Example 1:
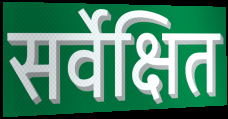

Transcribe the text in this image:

सर्वेक्षित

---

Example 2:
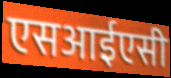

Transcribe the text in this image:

एसआईएसी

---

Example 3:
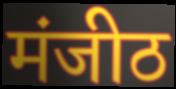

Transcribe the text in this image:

मंजीठ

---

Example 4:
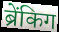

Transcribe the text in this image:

ब्रेंकिग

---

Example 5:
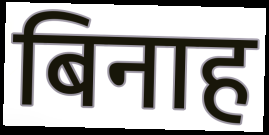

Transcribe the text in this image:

बिनाह